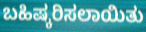
ಬಹಿಷ್ಕರಿಸಲಾಯಿತು